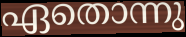
ഏതൊന്നു